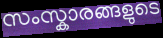
സംസ്കാരങ്ങളുടെ